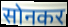
सोनकर